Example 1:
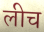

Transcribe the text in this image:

लीच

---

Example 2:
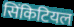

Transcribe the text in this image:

सिंकिटियल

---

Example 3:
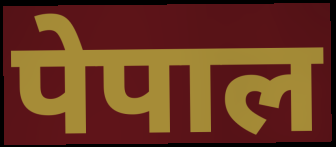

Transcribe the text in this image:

पेपाल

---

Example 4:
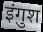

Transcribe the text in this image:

इंगुश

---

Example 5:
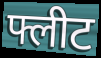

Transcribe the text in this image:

फ्लीट